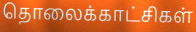
தொலைக்காட்சிகள்